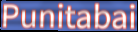
Punitabai